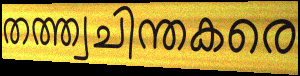
തത്ത്വചിന്തകരെ